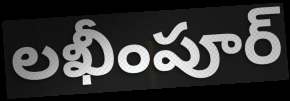
లఖీంపూర్